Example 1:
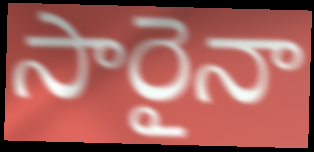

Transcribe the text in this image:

సారైనా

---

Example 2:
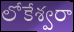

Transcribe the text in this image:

లోకేశ్వరా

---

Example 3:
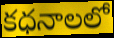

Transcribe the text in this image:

కధనాలలో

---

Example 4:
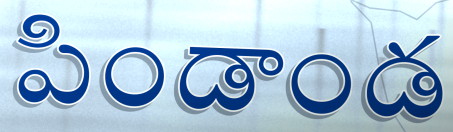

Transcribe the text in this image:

పిండాండ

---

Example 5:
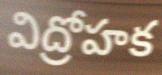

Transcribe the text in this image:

విద్రోహక